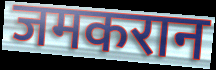
जमकरान